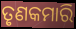
ତୃଣକମାରି